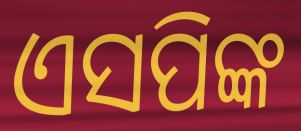
ଏସପିଙ୍କ